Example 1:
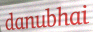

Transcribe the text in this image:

danubhai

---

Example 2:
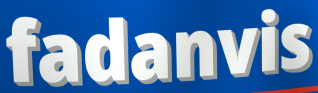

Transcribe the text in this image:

fadanvis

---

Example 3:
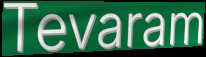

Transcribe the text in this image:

Tevaram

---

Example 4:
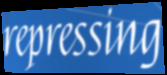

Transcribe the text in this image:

repressing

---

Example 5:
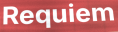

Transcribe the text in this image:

Requiem